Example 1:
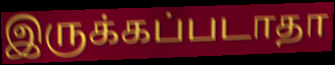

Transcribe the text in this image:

இருக்கப்படாதா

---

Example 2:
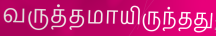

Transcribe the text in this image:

வருத்தமாயிருந்தது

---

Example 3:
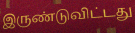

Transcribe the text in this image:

இருண்டுவிட்டது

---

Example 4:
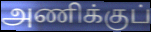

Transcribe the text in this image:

அணிக்குப்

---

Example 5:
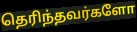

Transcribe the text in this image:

தெரிந்தவர்களோ